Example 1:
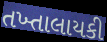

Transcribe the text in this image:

તખ્તાલાયકી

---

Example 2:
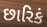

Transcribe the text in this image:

છારિકં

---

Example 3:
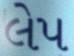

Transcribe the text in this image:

લેપ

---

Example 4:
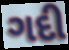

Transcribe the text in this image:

ગદી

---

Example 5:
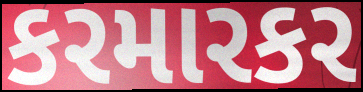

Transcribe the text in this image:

કરમારકર